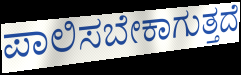
ಪಾಲಿಸಬೇಕಾಗುತ್ತದೆ